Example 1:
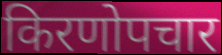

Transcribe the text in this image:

किरणोपचार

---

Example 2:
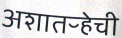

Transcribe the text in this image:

अशातऱ्हेची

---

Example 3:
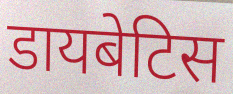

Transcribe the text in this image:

डायबेटिस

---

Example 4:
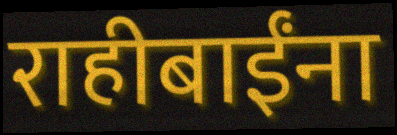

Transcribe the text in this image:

राहीबाईंना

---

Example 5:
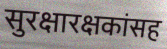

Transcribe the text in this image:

सुरक्षारक्षकांसह